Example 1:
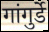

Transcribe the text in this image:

गांगुर्डे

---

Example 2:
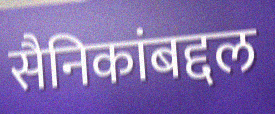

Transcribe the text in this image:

सैनिकांबद्दल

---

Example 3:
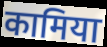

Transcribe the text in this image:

कामिया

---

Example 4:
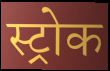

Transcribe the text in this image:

स्ट्रोक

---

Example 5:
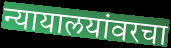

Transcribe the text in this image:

न्यायालयांवरचा